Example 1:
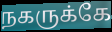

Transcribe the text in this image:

நகருக்கே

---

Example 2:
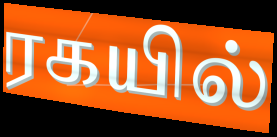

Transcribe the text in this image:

ரகயில்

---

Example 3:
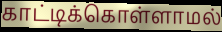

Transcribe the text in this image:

காட்டிக்கொள்ளாமல்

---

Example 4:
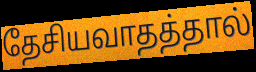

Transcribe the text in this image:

தேசியவாதத்தால்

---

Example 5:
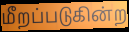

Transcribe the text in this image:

மீறப்படுகின்ற